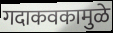
गदाकवकामुळे